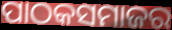
ପାଠକସମାଜର